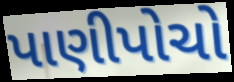
પાણીપોચો